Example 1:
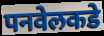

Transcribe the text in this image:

पनवेलकडे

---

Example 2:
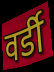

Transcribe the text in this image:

वर्डी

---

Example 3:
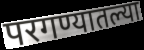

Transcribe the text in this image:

परगण्यातल्या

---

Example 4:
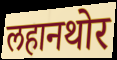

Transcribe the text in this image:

लहानथोर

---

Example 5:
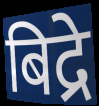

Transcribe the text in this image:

बिद्रे